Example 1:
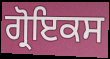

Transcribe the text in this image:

ਗ੍ਰੋਇਕਸ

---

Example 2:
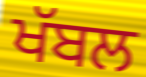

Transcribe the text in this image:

ਖੱਬਲ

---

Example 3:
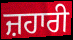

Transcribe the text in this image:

ਜ਼ਹਾਰੀ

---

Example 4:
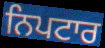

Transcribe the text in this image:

ਨਿਪਟਾਰ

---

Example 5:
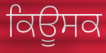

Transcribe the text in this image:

ਕਿਊਸਕ